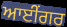
ਆਈਂਗਰ